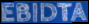
EBIDTA